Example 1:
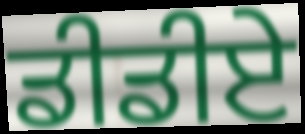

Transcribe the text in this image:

ਡੀਡੀਏ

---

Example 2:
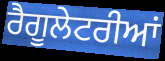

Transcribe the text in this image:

ਰੈਗੂਲੇਟਰੀਆਂ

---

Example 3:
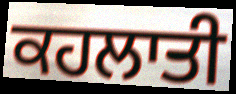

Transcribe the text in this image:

ਕਹਲਾਤੀ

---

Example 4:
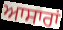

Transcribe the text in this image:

ਆਸਾਰਾਂ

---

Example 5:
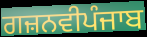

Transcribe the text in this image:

ਗਜ਼ਨਵੀਪੰਜਾਬ